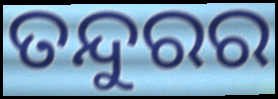
ତନ୍ଦୁରର